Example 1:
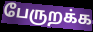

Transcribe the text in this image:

பேருறக்க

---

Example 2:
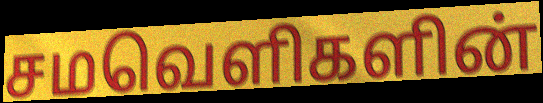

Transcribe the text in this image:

சமவெளிகளின்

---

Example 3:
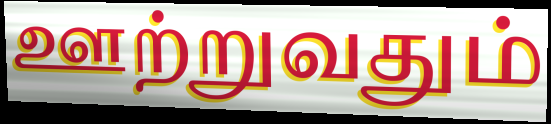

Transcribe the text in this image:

ஊற்றுவதும்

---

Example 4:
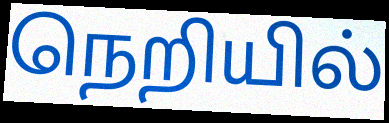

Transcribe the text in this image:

நெறியில்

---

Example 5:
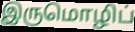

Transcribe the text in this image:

இருமொழிப்